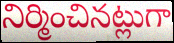
నిర్మించినట్లుగా